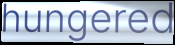
hungered